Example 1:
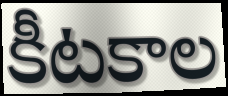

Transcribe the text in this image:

కీటకాల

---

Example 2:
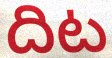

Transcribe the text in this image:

దిట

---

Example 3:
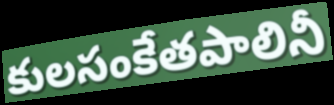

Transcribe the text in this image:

కులసంకేతపాలినీ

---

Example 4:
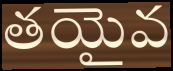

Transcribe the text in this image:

తయైవ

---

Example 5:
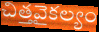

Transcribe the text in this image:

చిత్తవైకల్యం